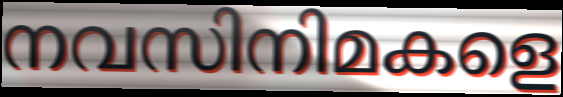
നവസിനിമകളെ